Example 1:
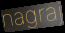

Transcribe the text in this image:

nagraj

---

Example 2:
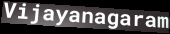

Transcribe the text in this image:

Vijayanagaram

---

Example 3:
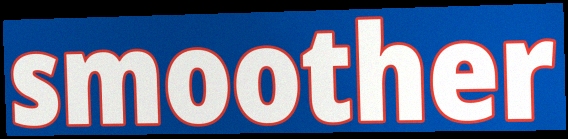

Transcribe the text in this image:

smoother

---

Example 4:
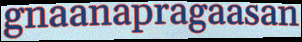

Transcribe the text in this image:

gnaanapragaasan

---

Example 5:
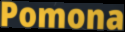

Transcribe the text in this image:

Pomona